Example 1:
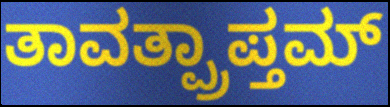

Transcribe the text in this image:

ತಾವತ್ಪ್ರಾಪ್ತಮ್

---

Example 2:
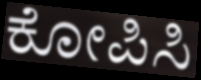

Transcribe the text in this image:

ಕೋಪಿಸಿ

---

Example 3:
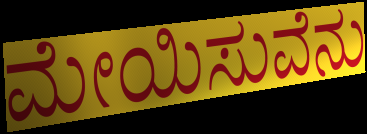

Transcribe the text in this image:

ಮೇಯಿಸುವೆನು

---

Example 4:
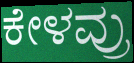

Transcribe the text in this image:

ಕೇಳವ್ರು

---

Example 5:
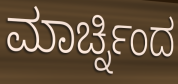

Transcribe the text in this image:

ಮಾರ್ಚ್ನಿಂದ